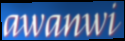
awanwi